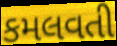
કમલવતી